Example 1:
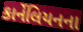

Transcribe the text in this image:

કાર્નેલિયનના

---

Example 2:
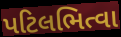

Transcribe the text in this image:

પટિલભિત્વા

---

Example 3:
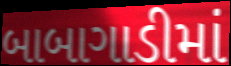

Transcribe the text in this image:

બાબાગાડીમાં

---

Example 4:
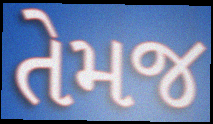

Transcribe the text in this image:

તેમજ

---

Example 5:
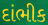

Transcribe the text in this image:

દાંભીક